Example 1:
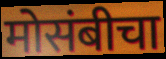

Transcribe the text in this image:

मोसंबीचा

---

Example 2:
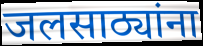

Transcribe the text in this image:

जलसाठ्यांना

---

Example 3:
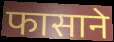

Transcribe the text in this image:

फासाने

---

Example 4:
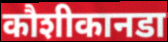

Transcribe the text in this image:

कौशीकानडा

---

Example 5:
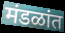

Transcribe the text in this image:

मंडळांत